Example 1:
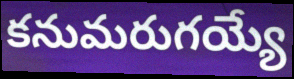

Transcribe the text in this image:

కనుమరుగయ్యే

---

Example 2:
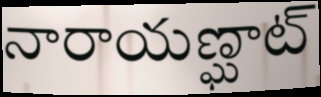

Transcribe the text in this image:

నారాయణ్ఘాట్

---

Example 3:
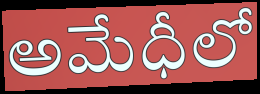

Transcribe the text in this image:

అమేధీలో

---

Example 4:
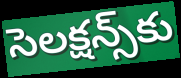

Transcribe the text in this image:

సెలక్షన్స్‌కు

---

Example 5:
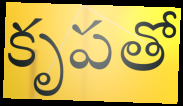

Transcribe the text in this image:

కృపతో